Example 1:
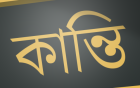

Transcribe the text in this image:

কান্তি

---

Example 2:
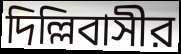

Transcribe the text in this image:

দিল্লিবাসীর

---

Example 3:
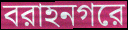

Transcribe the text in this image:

বরাহনগরে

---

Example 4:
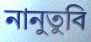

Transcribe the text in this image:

নানুতুবি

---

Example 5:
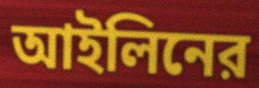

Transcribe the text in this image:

আইলিনের